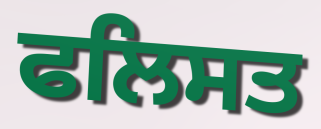
ਫਲਿਸਤ